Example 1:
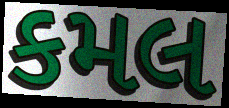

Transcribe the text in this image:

કમલ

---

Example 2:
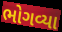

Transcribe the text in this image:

ભોગવ્યા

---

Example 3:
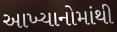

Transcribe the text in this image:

આખ્યાનોમાંથી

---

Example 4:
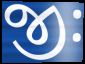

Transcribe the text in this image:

જીઃ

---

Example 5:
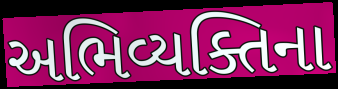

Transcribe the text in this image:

અભિવ્યક્તિના